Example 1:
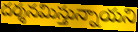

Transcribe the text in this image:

దర్శనమిస్తున్నాయని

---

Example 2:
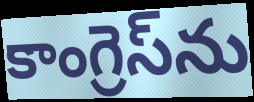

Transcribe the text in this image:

కాంగ్రెస్‌ను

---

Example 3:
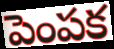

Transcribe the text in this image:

పెంపక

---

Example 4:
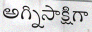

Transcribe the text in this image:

అగ్నిసాక్షిగా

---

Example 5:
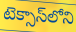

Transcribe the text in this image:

టెక్సాస్‌లోని